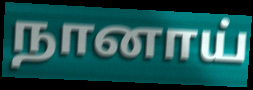
நானாய்